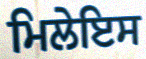
ਮਿਲੇਇਸ